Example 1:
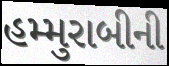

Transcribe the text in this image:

હમ્મુરાબીની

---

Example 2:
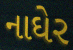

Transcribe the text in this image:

નાઘેર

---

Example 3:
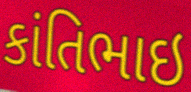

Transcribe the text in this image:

કાંતિભાઇ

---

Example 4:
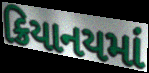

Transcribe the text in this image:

ક્રિયાનયમાં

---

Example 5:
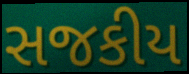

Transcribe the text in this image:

સજકીય